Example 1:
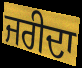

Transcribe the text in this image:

ਜਰੀਦਾ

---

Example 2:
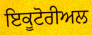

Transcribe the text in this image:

ਇਕੂਟੋਰੀਅਲ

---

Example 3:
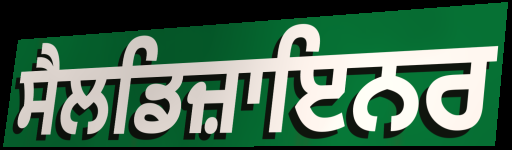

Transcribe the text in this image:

ਸੈਲਡਿਜ਼ਾਇਨਰ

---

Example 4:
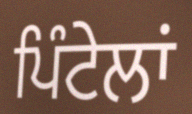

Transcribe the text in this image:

ਪਿੰਟੇਲਾਂ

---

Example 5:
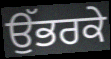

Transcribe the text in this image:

ਉੱਭਰਕੇ